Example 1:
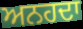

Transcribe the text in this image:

ਅਨਹਦਾ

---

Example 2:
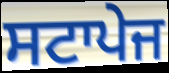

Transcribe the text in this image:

ਸਟਾਪੇਜ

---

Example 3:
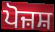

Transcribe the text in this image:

ਪੋਜ਼ਸ਼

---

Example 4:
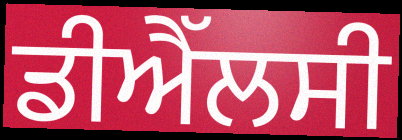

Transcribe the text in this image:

ਡੀਐੱਲਸੀ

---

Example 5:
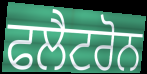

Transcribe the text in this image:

ਫਲੈਟਰੋਨ